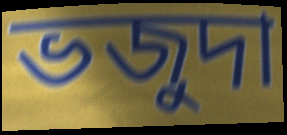
ভজুদা